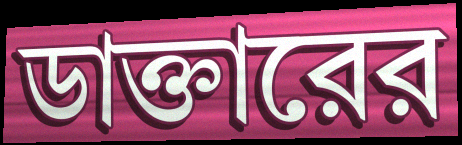
ডাক্তারের